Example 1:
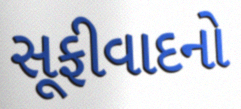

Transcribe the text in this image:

સૂફીવાદનો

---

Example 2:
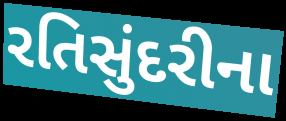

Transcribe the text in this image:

રતિસુંદરીના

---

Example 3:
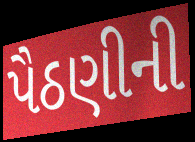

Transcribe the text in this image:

પૈઠણીની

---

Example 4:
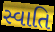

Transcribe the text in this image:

સ્વાતિ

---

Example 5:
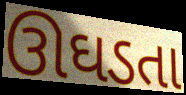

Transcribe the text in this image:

ઊઘડતા